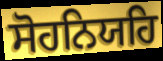
ਸੋਹਨਿਯਹਿ